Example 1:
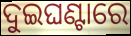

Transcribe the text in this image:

ଦୁଇଘଣ୍ଟାରେ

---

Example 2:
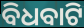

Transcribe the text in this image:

ବିଧବାଟି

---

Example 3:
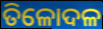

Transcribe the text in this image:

ତିଳୋଦଳ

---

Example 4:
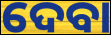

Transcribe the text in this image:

ଦେବା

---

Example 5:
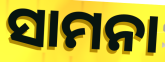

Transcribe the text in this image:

ସାମନା